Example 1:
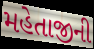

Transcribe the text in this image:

મહેતાજીની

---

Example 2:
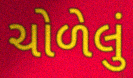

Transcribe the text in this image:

ચોળેલું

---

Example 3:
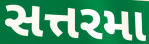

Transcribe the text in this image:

સત્તરમા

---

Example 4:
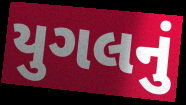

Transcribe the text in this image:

યુગલનું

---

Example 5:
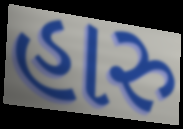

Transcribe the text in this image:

હારુ